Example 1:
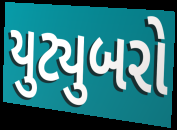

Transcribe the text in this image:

યુટ્યુબરો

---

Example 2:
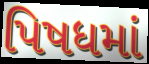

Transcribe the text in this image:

પિષધમાં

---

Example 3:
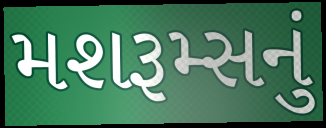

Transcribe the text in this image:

મશરૂમ્સનું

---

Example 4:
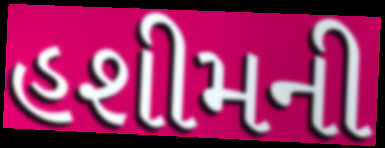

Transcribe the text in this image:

હશીમની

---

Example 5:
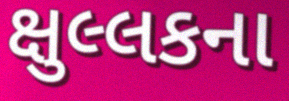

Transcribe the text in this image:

ક્ષુલ્લકના